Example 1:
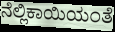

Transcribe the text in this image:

ನೆಲ್ಲಿಕಾಯಿಯಂತೆ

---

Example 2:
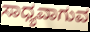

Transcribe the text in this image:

ಸಾಧ್ಯವಾಗುವ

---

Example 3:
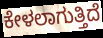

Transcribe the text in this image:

ಕೇಳಲಾಗುತ್ತಿದೆ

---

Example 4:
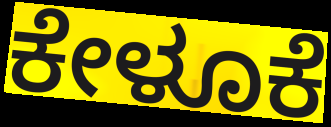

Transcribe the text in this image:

ಕೇಳೂಕೆ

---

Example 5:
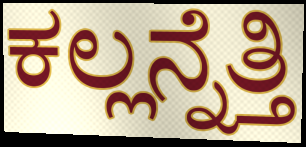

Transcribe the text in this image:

ಕಲ್ಲನ್ನೆತ್ತಿ